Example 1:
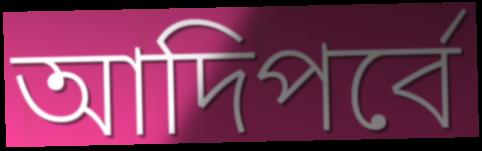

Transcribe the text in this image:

আদিপর্বে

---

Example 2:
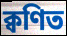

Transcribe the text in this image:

ক্বণিত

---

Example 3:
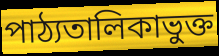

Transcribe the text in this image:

পাঠ্যতালিকাভুক্ত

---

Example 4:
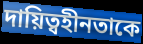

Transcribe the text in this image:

দায়িত্বহীনতাকে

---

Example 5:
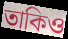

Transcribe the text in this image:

তাকিও